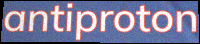
antiproton